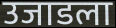
उजाडला